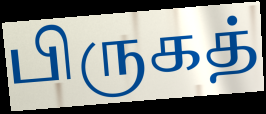
பிருகத்